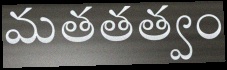
మతతత్వం